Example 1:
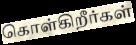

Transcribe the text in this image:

கொள்கிறீர்கள்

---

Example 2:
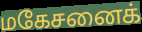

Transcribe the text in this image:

மகேசனைக்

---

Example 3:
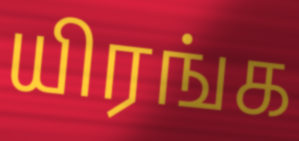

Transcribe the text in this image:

யிரங்க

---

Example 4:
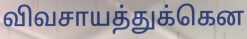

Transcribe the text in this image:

விவசாயத்துக்கென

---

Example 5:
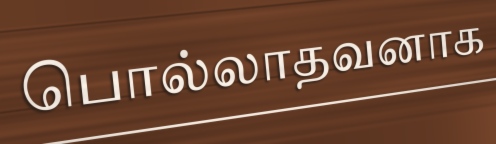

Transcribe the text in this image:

பொல்லாதவனாக